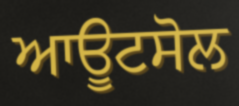
ਆਊਟਸੋਲ